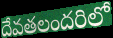
దేవతలందరిలో